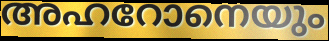
അഹറോനെയും